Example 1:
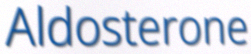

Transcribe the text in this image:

Aldosterone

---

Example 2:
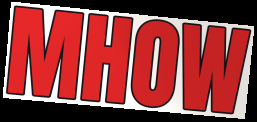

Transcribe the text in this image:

MHOW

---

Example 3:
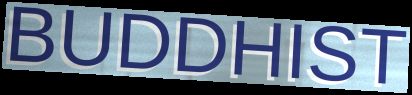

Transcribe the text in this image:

BUDDHIST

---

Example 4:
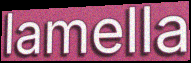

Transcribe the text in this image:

lamella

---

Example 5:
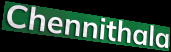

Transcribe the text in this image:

Chennithala